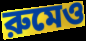
রুমেও